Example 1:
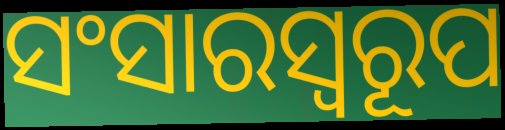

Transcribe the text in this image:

ସଂସାରସ୍ବରୂପ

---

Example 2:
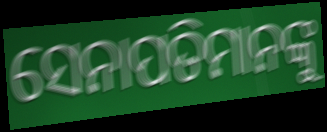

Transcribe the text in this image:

ସେନାପତିମାନଙ୍କୁ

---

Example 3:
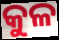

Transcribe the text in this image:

କୁଳ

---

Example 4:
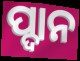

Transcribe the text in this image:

ପ୍ଦାନ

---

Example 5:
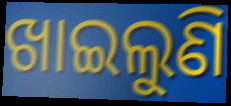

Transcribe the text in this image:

ଖାଇଲୁଣି